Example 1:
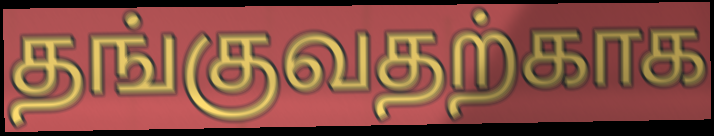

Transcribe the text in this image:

தங்குவதற்காக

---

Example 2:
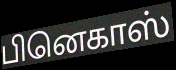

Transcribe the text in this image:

பினெகாஸ்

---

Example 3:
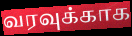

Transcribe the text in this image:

வரவுக்காக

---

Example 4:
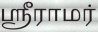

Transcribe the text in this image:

ஶ்ரீராமர்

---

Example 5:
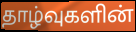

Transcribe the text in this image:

தாழ்வுகளின்